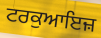
ਟਰਕੁਆਇਜ਼